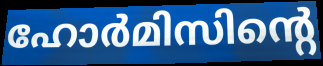
ഹോർമിസിന്റെ